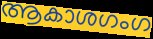
ആകാശഗംഗ